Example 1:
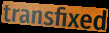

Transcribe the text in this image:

transfixed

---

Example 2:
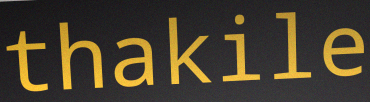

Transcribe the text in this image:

thakile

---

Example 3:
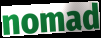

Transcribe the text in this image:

nomad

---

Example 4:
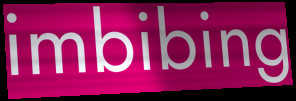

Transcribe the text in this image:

imbibing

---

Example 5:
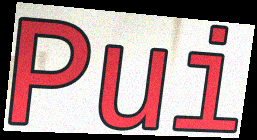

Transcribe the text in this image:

Pui